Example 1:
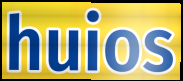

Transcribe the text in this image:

huios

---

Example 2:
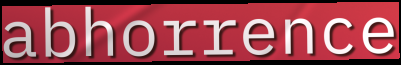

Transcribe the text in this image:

abhorrence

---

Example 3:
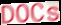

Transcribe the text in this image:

DOCs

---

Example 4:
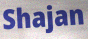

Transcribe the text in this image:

Shajan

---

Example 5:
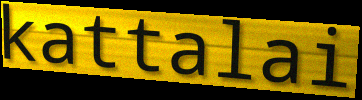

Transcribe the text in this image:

kattalai